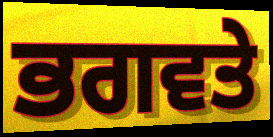
ਭਗਵਤੇ